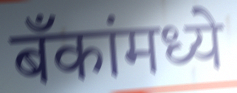
बँकांमध्ये